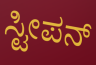
ಸ್ಟೀಪನ್